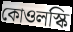
কোওলস্কি